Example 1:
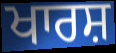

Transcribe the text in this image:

ਖਾਰਸ਼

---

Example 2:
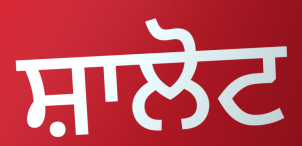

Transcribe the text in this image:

ਸ਼ਾਲੋਟ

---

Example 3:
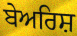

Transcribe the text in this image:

ਬੇਅਰਿਸ਼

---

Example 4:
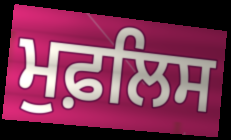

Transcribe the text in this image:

ਮੁਫ਼ਲਿਸ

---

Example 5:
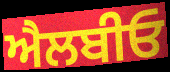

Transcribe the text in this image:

ਐਲਬੀਓ